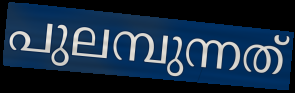
പുലമ്പുന്നത്